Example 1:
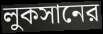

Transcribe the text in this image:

লুকসানের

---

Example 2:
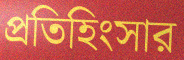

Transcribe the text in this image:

প্রতিহিংসার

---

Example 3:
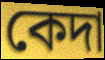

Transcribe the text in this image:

কেদা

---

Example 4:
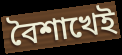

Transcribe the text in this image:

বৈশাখেই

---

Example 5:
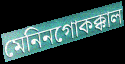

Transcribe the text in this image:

মেনিনগোকক্কাল